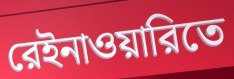
রেইনাওয়ারিতে